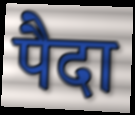
पैदा